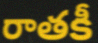
రాతకీ